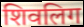
शिवलिग